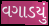
વગાડયું